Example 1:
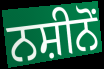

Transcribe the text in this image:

ਨਸ਼ੀਨੋਂ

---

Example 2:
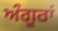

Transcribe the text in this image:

ਅੰਗੂਰਾਂ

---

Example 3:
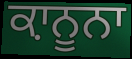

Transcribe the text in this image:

ਕ਼ਾਨੂਨਾ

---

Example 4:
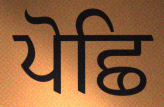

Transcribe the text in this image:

ਪੋਛਿ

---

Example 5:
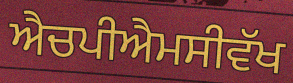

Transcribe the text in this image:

ਐਚਪੀਐਮਸੀਵੱਖ